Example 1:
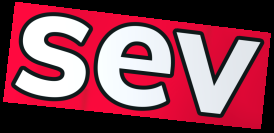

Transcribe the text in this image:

sev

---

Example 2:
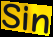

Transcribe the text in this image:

Sin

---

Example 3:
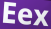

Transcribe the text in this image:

Eex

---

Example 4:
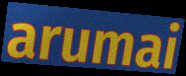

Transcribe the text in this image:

arumai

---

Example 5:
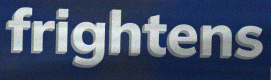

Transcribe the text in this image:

frightens